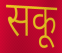
सकू